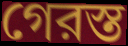
গেরস্ত